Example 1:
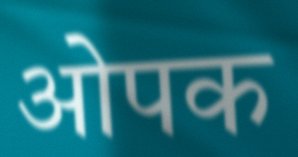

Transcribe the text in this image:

ओपक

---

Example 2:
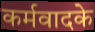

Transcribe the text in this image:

कर्मवादके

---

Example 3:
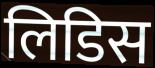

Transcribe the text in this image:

लिडिस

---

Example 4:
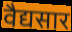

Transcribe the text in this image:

वैद्यसार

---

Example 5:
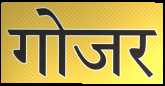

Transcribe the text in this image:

गोजर